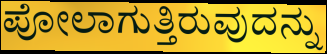
ಪೋಲಾಗುತ್ತಿರುವುದನ್ನು